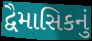
દ્વૈમાસિકનું